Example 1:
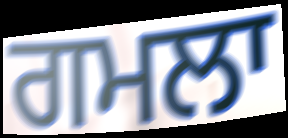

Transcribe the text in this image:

ਗਮਲਾ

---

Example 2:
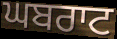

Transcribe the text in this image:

ਘਬਰਾਟ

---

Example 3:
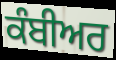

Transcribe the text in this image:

ਕੰਬੀਅਰ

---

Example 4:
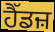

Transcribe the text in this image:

ਹੈੱਡਜ਼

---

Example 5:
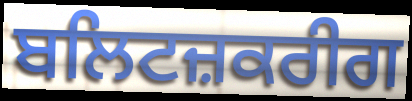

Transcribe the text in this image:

ਬਲਿਟਜ਼ਕਰੀਗ